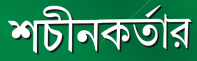
শচীনকর্তার